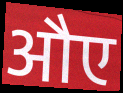
औए